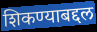
शिकण्याबद्दल